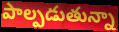
పాల్పడుతున్నా